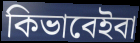
কিভাবেইবা